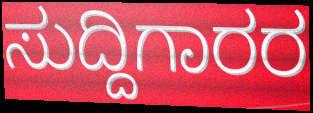
ಸುದ್ದಿಗಾರರ